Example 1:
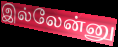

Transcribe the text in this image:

இல்லேன்னு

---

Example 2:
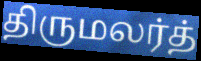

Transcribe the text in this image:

திருமலர்த்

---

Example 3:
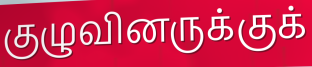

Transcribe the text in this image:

குழுவினருக்குக்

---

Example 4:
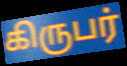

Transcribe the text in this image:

கிருபர்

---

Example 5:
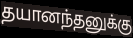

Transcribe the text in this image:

தயானந்தனுக்கு